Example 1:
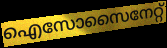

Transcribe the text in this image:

ഐസോസൈനേറ്റ്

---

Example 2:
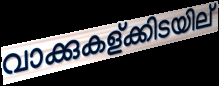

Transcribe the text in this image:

വാക്കുകള്ക്കിടയില്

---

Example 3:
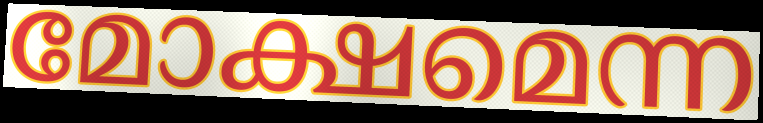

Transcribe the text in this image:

മോക്ഷമെന്ന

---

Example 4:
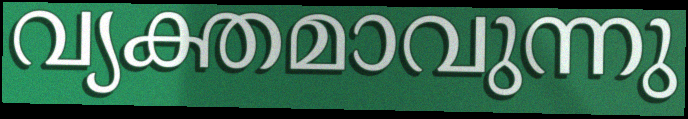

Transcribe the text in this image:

വ്യക്തമാവുന്നു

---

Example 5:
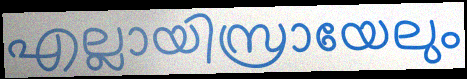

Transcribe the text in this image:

എല്ലായിസ്രായേലും